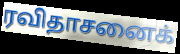
ரவிதாசனைக்